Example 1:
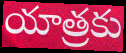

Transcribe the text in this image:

యాత్రకు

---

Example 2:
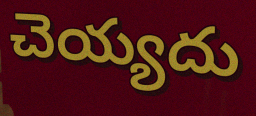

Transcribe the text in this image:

చెయ్యదు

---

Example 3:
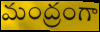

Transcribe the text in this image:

మంద్రంగా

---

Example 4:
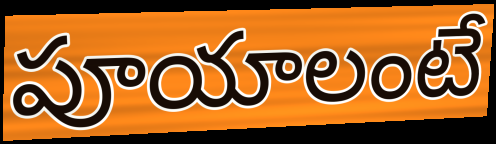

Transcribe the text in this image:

పూయాలంటే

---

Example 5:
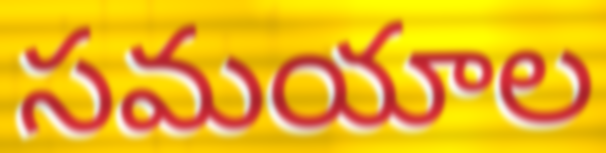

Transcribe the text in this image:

సమయాల